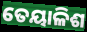
ତେୟାଳିଶ